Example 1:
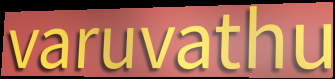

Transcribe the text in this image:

varuvathu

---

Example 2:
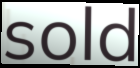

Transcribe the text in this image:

sold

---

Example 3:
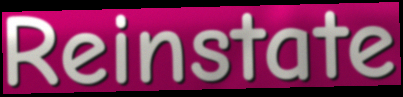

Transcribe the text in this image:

Reinstate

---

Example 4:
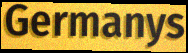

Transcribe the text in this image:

Germanys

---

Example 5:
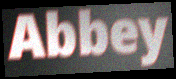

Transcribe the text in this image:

Abbey